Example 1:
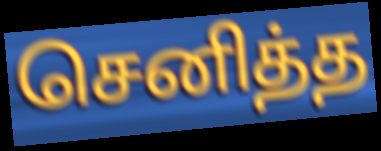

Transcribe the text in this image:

செனித்த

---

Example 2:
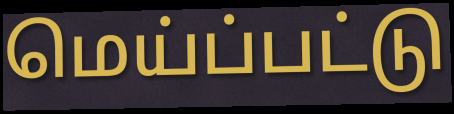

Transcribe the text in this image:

மெய்ப்பட்டு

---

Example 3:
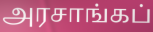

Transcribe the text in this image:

அரசாங்கப்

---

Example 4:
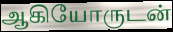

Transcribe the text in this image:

ஆகியோருடன்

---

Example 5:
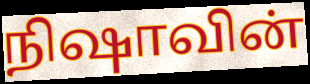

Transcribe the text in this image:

நிஷாவின்